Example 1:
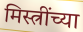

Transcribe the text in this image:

मिस्त्रींच्या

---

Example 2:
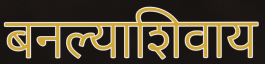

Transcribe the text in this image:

बनल्याशिवाय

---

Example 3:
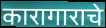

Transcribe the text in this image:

कारागाराचे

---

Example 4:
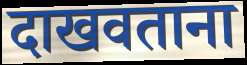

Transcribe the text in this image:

दाखवताना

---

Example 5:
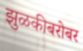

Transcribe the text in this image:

झुळकीबरोबर